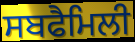
ਸਬਫੈਮਿਲੀ